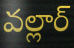
వల్లార్